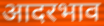
आदरभाव